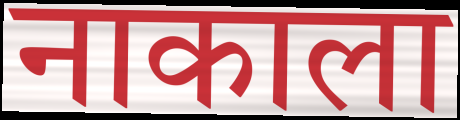
नाकाला